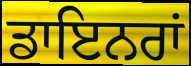
ਡਾਇਨਰਾਂ